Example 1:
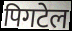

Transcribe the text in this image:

पिगटेल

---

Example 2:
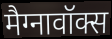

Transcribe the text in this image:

मैग्नावॉक्स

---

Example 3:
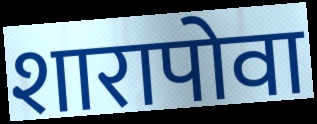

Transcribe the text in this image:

शारापोवा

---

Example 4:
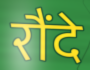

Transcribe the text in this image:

रौंदे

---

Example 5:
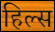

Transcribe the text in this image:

हिल्स